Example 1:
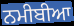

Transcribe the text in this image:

ਨਮੀਬੀਆ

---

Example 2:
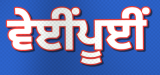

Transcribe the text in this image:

ਵੇਈਂਪੂਈਂ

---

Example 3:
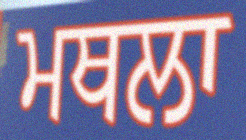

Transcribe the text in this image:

ਮਥਲਾ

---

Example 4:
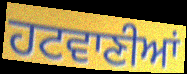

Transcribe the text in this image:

ਹਟਵਾਣੀਆਂ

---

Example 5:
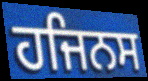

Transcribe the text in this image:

ਹਜਿਨਸ